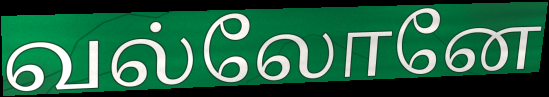
வல்லோனே